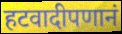
हटवादीपणानं